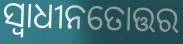
ସ୍ୱାଧୀନତୋତ୍ତର